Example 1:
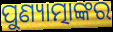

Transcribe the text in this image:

ପୁଣ୍ୟାତ୍ମାଙ୍କର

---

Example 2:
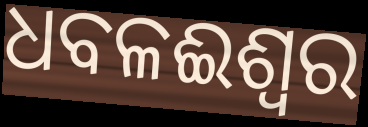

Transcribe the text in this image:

ଧବଳଈଶ୍ବର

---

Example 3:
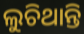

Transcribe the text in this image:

ଲୁଚିଥାନ୍ତି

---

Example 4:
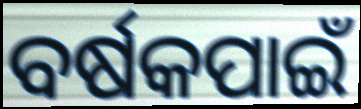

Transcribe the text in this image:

ବର୍ଷକପାଇଁ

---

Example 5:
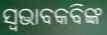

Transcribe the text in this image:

ସ୍ଵଭାବକବିଙ୍କ